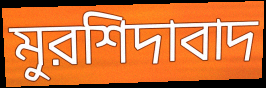
মুরশিদাবাদ